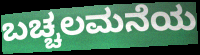
ಬಚ್ಚಲಮನೆಯ